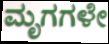
ಮೃಗಗಳೇ